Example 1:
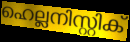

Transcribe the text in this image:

ഹെല്ലനിസ്റ്റിക്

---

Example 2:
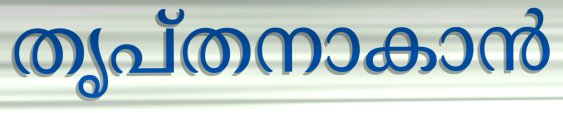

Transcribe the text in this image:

തൃപ്തനാകാൻ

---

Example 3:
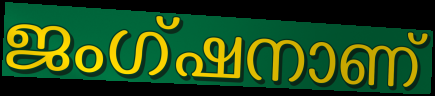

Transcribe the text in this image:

ജംഗ്ഷനാണ്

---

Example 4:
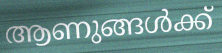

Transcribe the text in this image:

ആണുങ്ങൾക്ക്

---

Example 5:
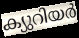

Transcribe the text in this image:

ക്യുറിയർ